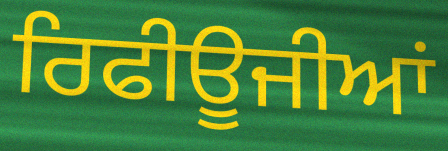
ਰਿਫੀਊਜੀਆਂ